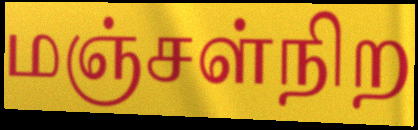
மஞ்சள்நிற